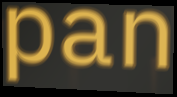
pan